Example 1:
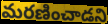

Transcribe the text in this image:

మరణించాడని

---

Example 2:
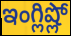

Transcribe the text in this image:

ఇంగ్లిష్లో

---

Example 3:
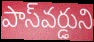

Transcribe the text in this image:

పాస్‌వర్డుని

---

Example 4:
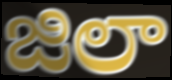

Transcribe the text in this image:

జిలా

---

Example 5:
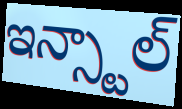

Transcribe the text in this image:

ఇన్స్టాల్